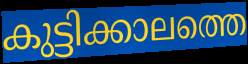
കുട്ടിക്കാലത്തെ